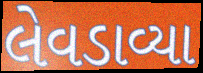
લેવડાવ્યા